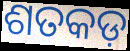
ଶତକଡ଼